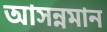
আসন্নমান